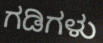
ಗಡಿಗಳು